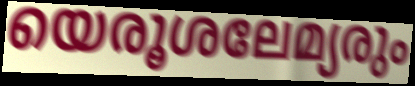
യെരൂശലേമ്യരും